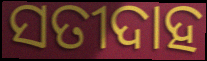
ସତୀଦାହ